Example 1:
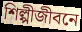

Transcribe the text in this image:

শিল্পীজীবনে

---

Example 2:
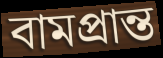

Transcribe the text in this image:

বামপ্রান্ত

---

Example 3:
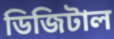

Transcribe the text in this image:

ডিজিটাল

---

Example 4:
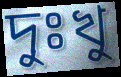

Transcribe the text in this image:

দুঃখু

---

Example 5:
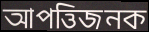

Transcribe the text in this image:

আপত্তিজনক